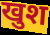
खुश